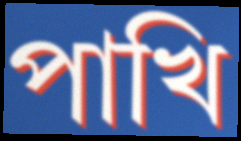
পাখি